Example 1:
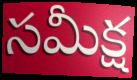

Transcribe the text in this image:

సమీక్ష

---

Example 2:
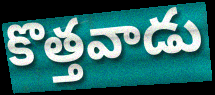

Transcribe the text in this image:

కొత్తవాడు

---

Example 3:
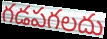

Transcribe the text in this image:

గడపగలదు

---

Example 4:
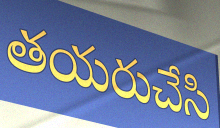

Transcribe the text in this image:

తయరుచేసి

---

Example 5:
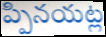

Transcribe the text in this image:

ప్పినయట్ల